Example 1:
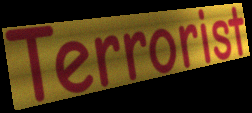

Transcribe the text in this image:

Terrorist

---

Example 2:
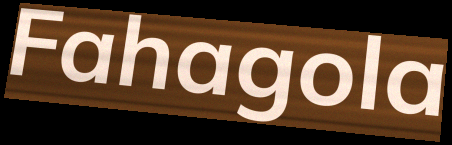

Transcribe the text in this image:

Fahagola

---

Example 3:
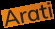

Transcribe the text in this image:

Arati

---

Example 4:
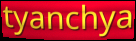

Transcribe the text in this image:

tyanchya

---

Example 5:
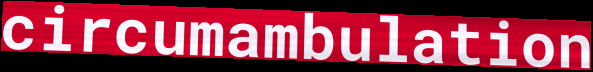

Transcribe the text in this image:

circumambulation